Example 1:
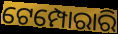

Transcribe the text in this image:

ଟେମ୍ପୋରାରି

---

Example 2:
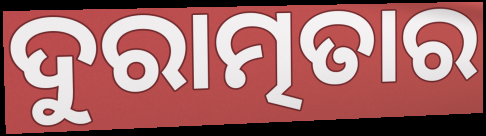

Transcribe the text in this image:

ଦୁରାତ୍ମତାର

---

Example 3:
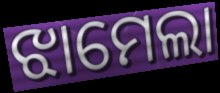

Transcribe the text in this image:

ଝାମେଲା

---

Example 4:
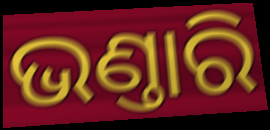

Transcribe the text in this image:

ଭଣ୍ତାରି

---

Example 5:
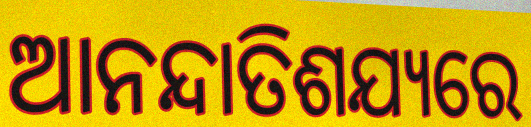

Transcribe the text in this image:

ଆନନ୍ଦାତିଶଯ୍ୟରେ